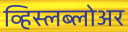
व्हिस्लब्लोअर